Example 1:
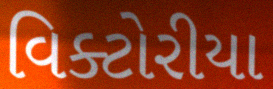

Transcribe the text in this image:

વિક્ટોરીયા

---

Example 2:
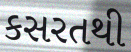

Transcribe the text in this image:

કસરતથી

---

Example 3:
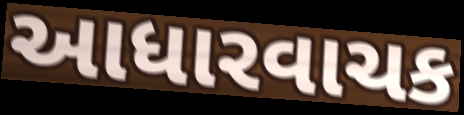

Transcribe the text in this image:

આધારવાચક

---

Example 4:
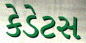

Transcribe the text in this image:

કેડેટસ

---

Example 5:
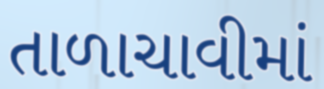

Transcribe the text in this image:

તાળાચાવીમાં